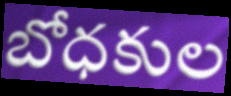
బోధకుల